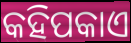
କହିପକାଏ